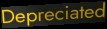
Depreciated